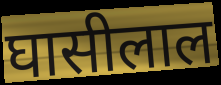
घासीलाल